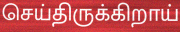
செய்திருக்கிறாய்